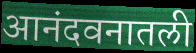
आनंदवनातली